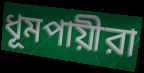
ধূমপায়ীরা